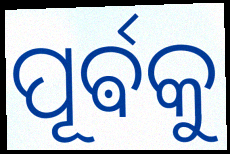
ପୂର୍ଵକୁ